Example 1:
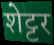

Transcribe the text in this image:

शेट्टर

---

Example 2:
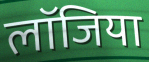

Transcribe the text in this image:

लॉजिया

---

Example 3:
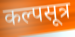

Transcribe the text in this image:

कल्पसूत्र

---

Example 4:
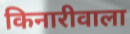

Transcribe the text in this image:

किनारीवाला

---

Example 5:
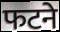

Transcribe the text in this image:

फटने